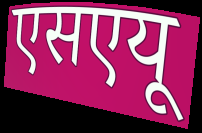
एसएयू